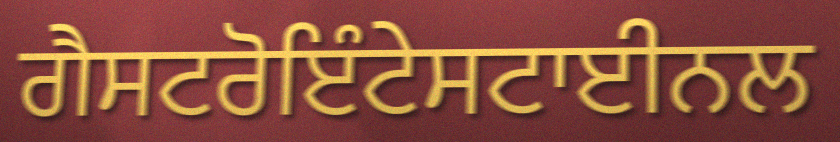
ਗੈਸਟਰੋਇੰਟੇਸਟਾਈਨਲ